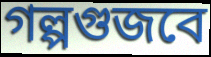
গল্পগুজবে